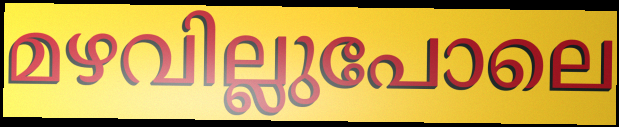
മഴവില്ലുപോലെ